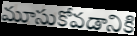
మూసుకోవడానికి